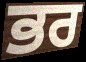
ਭਰ